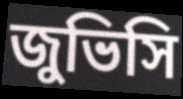
জুভিসি